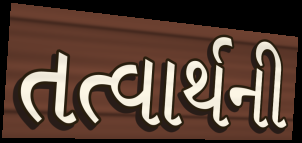
તત્વાર્થની